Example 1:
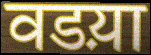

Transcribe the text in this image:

वडय़ा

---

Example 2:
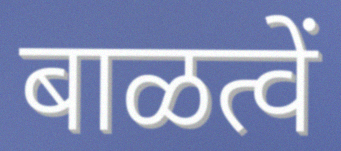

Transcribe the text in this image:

बाळत्वें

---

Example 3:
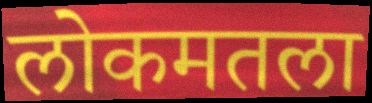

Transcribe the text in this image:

लोकमतला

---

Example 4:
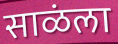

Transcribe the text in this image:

साळंला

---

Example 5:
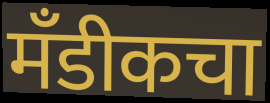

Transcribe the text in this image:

मँडीकचा